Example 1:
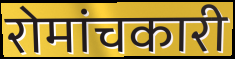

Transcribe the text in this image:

रोमांचकारी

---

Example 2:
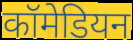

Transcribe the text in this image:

कॉमेडियन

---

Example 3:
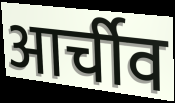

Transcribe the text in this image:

आर्चीव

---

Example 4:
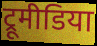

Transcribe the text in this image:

ट्रूमीडिया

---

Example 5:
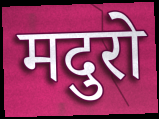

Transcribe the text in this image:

मदुरो